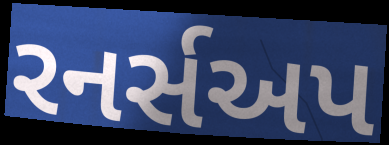
રનર્સઅપ